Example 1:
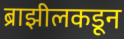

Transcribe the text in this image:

ब्राझीलकडून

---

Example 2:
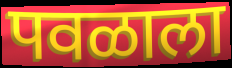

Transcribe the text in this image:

पवळाला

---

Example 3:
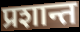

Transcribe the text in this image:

प्रशान्त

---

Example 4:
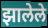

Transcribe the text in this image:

झालेले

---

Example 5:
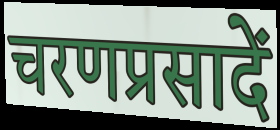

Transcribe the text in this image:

चरणप्रसादें